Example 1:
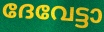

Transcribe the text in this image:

ദേവേട്ടാ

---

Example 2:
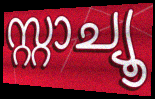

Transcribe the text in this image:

സ്റ്റാച്യൂ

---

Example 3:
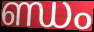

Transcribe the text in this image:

ണ്ഡം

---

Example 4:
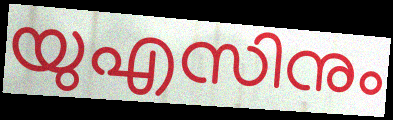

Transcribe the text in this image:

യുഎസിനും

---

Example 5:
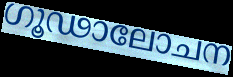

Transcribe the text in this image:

ഗൂഢാലോചന